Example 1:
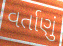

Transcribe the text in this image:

વર્તાણું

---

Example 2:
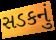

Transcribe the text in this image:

સડકનું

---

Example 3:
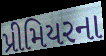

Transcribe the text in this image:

પ્રીમિયરના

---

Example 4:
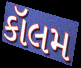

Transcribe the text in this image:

કૉલમ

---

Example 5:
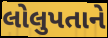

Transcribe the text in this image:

લોલુપતાને